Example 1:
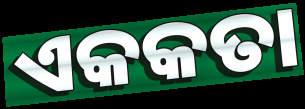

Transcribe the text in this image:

ଏକକତା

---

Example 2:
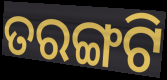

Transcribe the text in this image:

ତରଙ୍ଗଟି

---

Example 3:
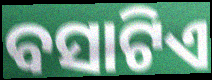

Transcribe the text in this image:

ବସାଟିଏ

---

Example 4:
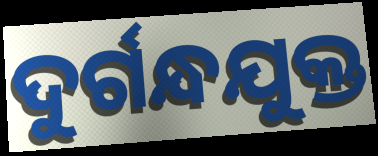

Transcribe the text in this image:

ଦୁର୍ଗନ୍ଧଯୁକ୍ତ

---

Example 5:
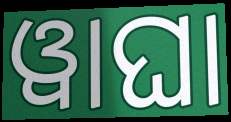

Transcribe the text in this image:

ୱାଘା